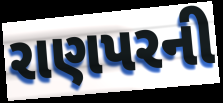
રાણપરની